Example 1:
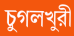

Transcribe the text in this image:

চুগলখুরী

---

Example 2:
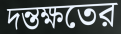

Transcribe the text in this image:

দন্তক্ষতের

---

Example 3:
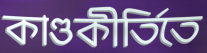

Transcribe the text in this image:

কাণ্ডকীর্তিতে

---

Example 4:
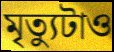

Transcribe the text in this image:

মৃত্যুটাও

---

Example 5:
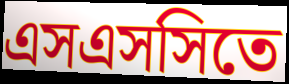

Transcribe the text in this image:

এসএসসিতে